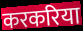
करकरिया